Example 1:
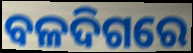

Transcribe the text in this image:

ବଳଦିଗରେ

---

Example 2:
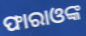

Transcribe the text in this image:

ଫାରାଓଙ୍କ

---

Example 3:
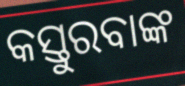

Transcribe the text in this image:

କସ୍ତୁରବାଙ୍କ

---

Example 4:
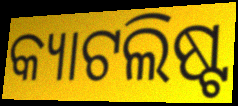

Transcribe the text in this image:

କ୍ୟାଟଲିଷ୍ଟ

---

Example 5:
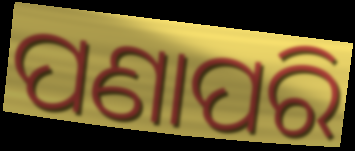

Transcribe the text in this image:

ପଣାପରି